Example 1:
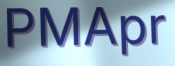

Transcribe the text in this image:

PMApr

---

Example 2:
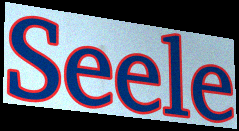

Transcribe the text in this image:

Seele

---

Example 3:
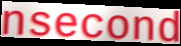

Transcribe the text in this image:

nsecond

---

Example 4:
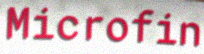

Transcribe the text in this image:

Microfin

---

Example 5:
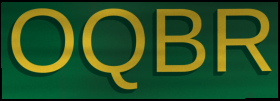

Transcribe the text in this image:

OQBR